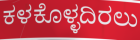
ಕಳಕೊಳ್ಳದಿರಲು